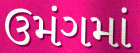
ઉમંગમાં